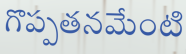
గొప్పతనమేంటి